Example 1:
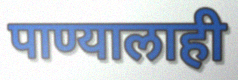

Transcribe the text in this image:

पाण्यालाही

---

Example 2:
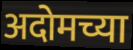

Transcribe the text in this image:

अदोमच्या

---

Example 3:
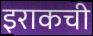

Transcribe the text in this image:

इराकची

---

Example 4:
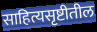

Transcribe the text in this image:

साहित्यसृष्टीतील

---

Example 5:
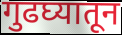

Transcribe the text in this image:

गुढघ्यातून